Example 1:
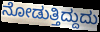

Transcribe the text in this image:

ನೋಡುತ್ತಿದ್ದುದು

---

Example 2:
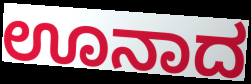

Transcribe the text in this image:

ಊನಾದ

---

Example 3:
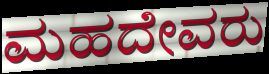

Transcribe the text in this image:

ಮಹದೇವರು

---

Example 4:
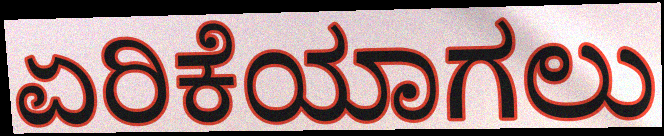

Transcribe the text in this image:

ಏರಿಕೆಯಾಗಲು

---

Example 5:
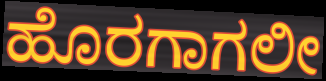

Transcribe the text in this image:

ಹೊರಗಾಗಲೀ